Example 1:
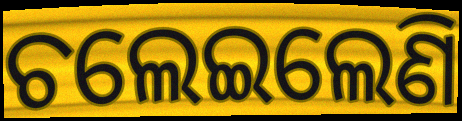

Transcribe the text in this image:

ଚଲେଇଲେଣି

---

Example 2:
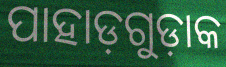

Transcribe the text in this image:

ପାହାଡ଼ଗୁଡ଼ାକ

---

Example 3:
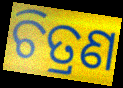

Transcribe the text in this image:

ଚିତ୍ରଣ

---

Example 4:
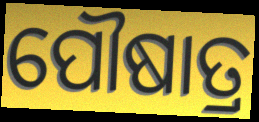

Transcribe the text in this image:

ପୌଷାତ୍ର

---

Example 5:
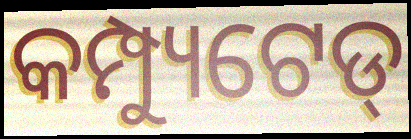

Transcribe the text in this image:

କମ୍ପ୍ୟୁଟେଡ୍